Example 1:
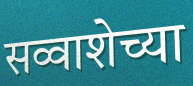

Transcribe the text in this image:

सव्वाशेच्या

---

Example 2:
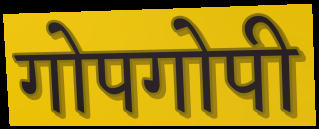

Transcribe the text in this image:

गोपगोपी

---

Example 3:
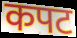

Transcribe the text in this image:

कपट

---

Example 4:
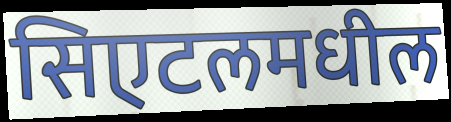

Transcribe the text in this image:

सिएटलमधील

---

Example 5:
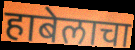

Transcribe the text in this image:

हाबेलाचा